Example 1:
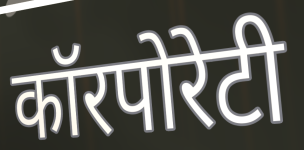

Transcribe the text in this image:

कॉरपोरेटी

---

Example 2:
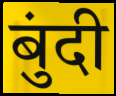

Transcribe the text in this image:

बुंदी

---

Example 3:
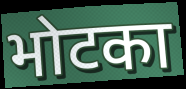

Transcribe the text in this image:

भोटका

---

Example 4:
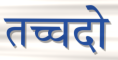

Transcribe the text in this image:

तच्चदो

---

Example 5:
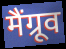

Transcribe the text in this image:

मैंग्रूव